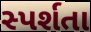
સ્પર્શતા